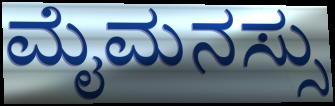
ಮೈಮನಸ್ಸು